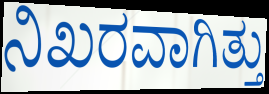
ನಿಖರವಾಗಿತ್ತು